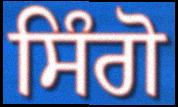
ਸਿੰਗੋ